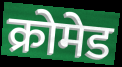
क्रोमेड